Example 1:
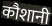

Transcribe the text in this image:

कौशानी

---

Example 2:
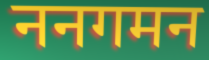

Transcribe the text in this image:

ननगमन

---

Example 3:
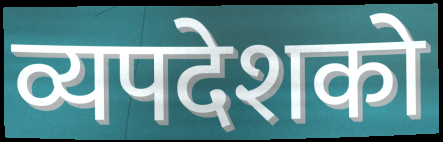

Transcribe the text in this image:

व्यपदेशको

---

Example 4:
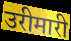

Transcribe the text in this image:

उरीमारी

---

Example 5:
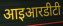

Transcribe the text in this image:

आइआरडीटी